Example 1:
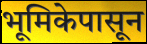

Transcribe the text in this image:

भूमिकेपासून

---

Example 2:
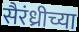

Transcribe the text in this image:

सैरंध्रीच्या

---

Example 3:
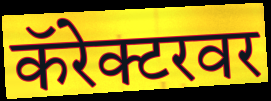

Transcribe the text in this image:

कॅरेक्टरवर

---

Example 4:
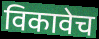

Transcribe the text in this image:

विकावेच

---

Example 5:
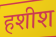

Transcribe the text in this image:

हशीश